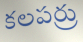
కలపర్రు